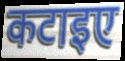
कटाइए